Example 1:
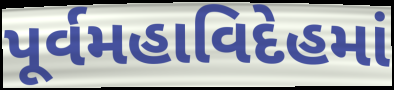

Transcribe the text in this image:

પૂર્વમહાવિદેહમાં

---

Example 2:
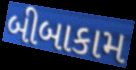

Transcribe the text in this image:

બીબાકામ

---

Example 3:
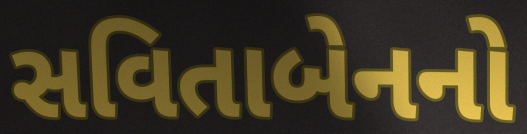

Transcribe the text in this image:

સવિતાબેનનો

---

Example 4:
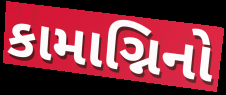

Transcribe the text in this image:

કામાગ્નિનો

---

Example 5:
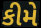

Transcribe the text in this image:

કીમે